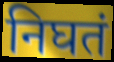
निघतं